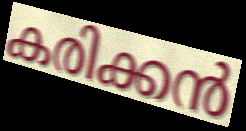
കരിക്കൻ